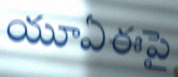
యూఏఈపై